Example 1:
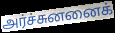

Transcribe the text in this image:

அர்ச்சுனனைக்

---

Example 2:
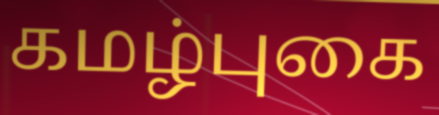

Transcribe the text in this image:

கமழ்புகை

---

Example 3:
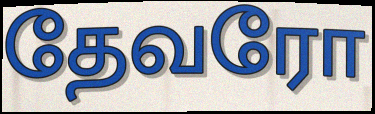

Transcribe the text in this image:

தேவரோ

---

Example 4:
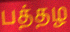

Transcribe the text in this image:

பத்தழ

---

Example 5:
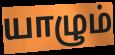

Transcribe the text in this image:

யாழும்